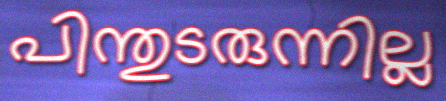
പിന്തുടരുന്നില്ല